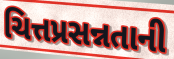
ચિત્તપ્રસન્નતાની